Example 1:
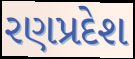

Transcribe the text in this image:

રણપ્રદેશ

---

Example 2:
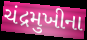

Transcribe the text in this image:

ચંદ્રમુખીના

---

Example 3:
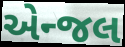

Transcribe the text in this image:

એન્જલ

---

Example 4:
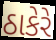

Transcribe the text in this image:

ઠાકેરે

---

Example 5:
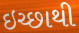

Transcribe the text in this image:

ઇચ્છાથી